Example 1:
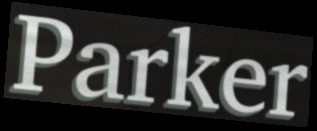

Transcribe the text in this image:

Parker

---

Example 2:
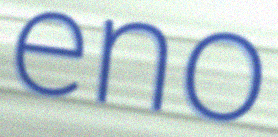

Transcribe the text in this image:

eno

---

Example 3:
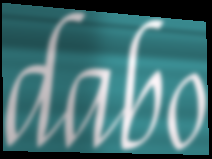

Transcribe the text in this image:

dabo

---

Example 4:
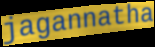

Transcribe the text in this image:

jagannatha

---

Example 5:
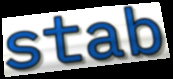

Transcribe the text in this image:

stab